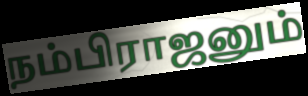
நம்பிராஜனும்